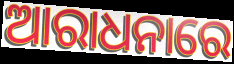
ଆରାଧନାରେ